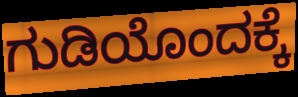
ಗುಡಿಯೊಂದಕ್ಕೆ